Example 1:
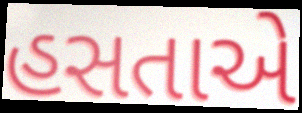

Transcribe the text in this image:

હસતાએ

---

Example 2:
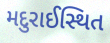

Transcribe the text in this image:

મદુરાઈસ્થિત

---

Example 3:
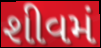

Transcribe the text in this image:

શીવમં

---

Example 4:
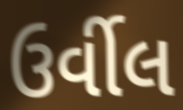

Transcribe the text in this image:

ઉર્વીલ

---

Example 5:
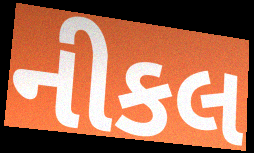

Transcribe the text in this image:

નીકલ